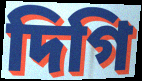
দিগি